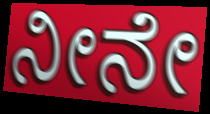
ನೀನೇ